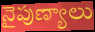
నైపుణ్యాలు